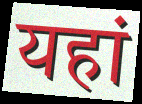
यहां